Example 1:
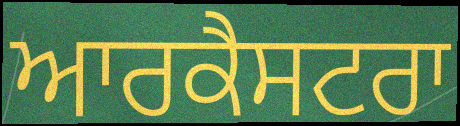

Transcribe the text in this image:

ਆਰਕੈਸਟਰਾ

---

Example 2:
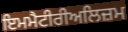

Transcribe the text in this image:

ਇਮਮੈਟੀਰੀਅਲਿਜ਼ਮ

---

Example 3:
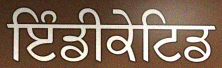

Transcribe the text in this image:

ਇੰਡੀਕੇਟਿਡ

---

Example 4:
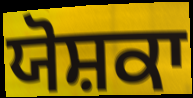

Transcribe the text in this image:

ਯੋਸ਼ਕਾ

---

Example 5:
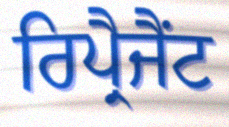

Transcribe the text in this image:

ਰਿਪ੍ਰੈਜੈਂਟ